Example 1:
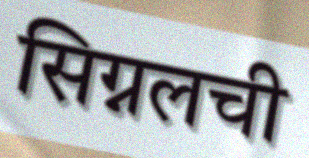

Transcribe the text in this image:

सिग्नलची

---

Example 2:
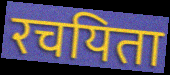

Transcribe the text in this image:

रचयिता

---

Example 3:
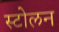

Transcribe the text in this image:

स्टोलन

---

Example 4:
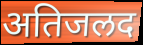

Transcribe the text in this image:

अतिजलद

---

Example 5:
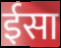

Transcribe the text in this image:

ईसा